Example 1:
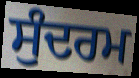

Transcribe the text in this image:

ਸੁੰਦਰਮ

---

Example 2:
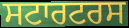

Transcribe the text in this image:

ਸਟਾਰਟਰਸ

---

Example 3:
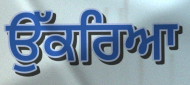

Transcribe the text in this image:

ਉੱਕਰਿਆ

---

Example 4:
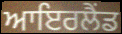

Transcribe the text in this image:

ਆਇਰਲੈੰਡ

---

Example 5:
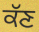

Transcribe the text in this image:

ਕੱਣ